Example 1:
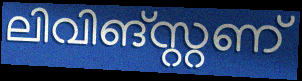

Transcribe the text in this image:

ലിവിങ്സ്റ്റണ്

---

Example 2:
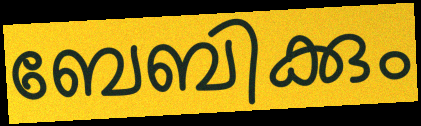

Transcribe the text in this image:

ബേബിക്കും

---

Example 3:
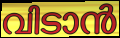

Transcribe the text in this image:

വിടാൻ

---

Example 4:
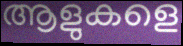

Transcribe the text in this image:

ആളുകളെ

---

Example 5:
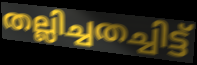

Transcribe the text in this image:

തല്ലിച്ചതച്ചിട്ട്